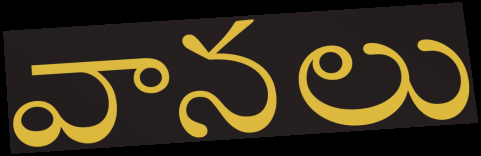
వానలు